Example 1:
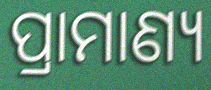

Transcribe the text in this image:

ପ୍ରାମାଣ୍ୟ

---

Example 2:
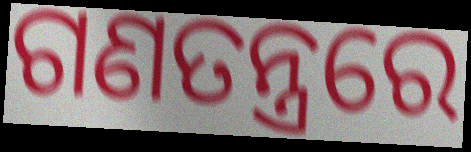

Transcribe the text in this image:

ଗଣତନ୍ତ୍ରରେ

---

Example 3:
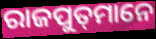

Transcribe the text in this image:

ରାଜପୁତ୍‍ମାନେ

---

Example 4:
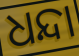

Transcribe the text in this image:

ଧନ୍ଦା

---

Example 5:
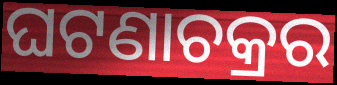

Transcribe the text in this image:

ଘଟଣାଚକ୍ରର